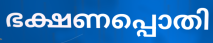
ഭക്ഷണപ്പൊതി